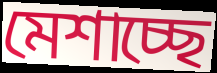
মেশাচ্ছে